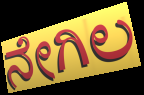
ನೇಗಿಲ